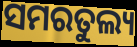
ସମରତୁଲ୍ୟ